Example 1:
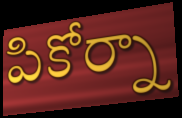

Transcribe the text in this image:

పికోర్నా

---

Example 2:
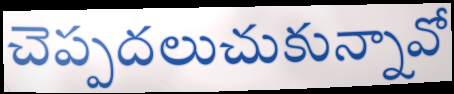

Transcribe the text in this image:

చెప్పదలుచుకున్నావో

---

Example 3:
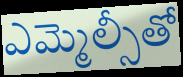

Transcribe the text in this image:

ఎమ్మెల్సీతో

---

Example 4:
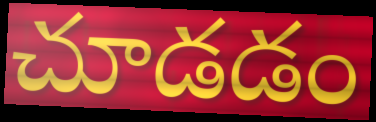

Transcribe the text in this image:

చూడడం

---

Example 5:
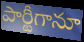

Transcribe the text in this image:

పార్టీగానూ